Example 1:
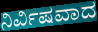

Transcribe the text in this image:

ನಿರ್ವಿಷವಾದ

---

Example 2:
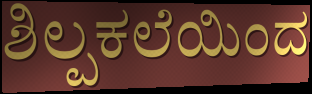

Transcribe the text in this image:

ಶಿಲ್ಪಕಲೆಯಿಂದ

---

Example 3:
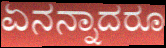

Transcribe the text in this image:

ಏನನ್ನಾದರೂ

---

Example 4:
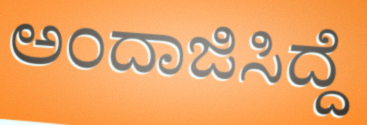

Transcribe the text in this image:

ಅಂದಾಜಿಸಿದ್ದೆ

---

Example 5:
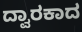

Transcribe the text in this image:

ದ್ವಾರಕಾದ